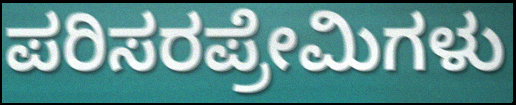
ಪರಿಸರಪ್ರೇಮಿಗಳು